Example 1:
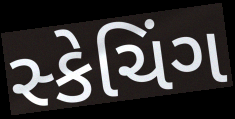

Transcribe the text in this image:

સ્કેચિંગ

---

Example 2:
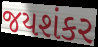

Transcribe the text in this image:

જયશંકર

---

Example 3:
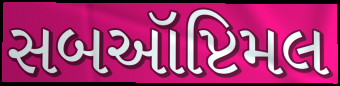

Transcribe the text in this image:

સબઑપ્ટિમલ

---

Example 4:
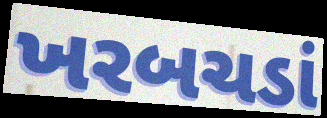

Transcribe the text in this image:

ખરબચડાં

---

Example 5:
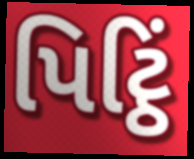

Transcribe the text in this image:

પિટ્ઠિં